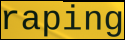
raping